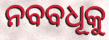
ନବବଧୂକୁ